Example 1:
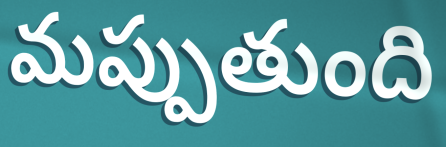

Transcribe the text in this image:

మప్పుతుంది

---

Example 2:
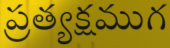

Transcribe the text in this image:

ప్రత్యక్షముగ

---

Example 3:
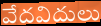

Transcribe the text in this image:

వేదవిదులు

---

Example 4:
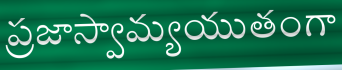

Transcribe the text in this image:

ప్రజాస్వామ్యయుతంగా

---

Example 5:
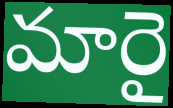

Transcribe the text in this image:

మారై